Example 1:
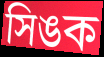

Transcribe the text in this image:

সিঙক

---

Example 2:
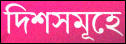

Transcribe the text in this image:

দিশসমূহে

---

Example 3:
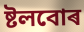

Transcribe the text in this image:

ষ্টলবোৰ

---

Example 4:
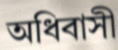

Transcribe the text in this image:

অধিবাসী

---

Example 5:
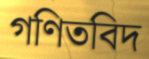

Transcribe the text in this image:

গণিতবিদ